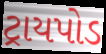
ટ્રાયપોડ